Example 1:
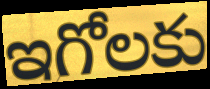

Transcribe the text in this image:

ఇగోలకు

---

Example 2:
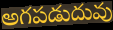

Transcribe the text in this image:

అగపడుదువు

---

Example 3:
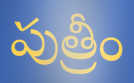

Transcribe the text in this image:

పుత్రీం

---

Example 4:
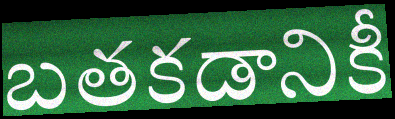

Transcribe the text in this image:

బతకడానికీ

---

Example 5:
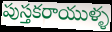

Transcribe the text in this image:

పుస్తకరాయుళ్ళ